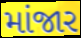
માંજાર